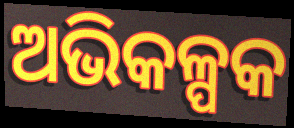
ଅଭିକଳ୍ପକ